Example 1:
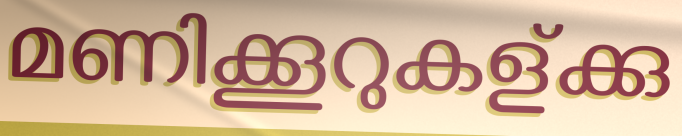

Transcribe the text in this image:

മണിക്കൂറുകള്ക്കു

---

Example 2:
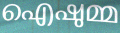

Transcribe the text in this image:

ഐഷുമ്മ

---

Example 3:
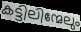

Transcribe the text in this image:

കട്ടിലിന്മേലും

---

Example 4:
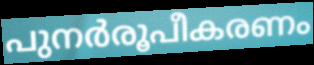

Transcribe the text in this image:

പുനർരൂപീകരണം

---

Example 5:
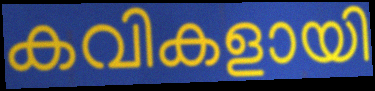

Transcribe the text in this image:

കവികളായി